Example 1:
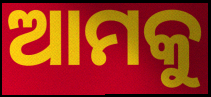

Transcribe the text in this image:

ଆମକୁ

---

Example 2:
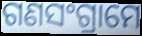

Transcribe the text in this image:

ଗଣସଂଗ୍ରାମେ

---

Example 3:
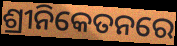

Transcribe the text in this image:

ଶ୍ରୀନିକେତନରେ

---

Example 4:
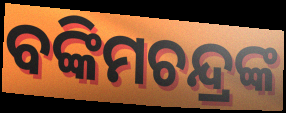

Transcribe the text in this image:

ବଙ୍କିମଚନ୍ଦ୍ରଙ୍କ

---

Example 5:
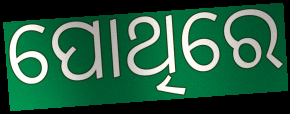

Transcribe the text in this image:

ପୋଥିରେ